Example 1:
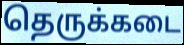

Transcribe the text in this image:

தெருக்கடை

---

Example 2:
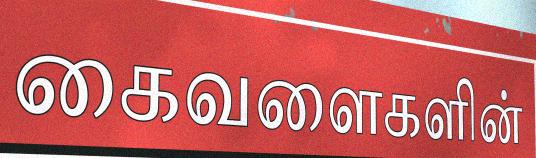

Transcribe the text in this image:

கைவளைகளின்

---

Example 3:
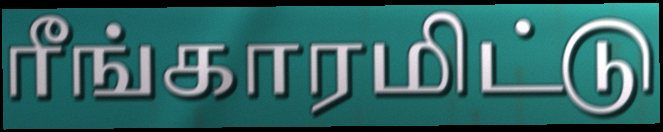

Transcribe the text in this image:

ரீங்காரமிட்டு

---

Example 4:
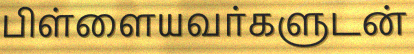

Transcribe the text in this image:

பிள்ளையவர்களுடன்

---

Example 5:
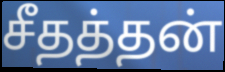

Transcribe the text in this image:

சீதத்தன்